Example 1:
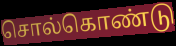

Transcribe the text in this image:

சொல்கொண்டு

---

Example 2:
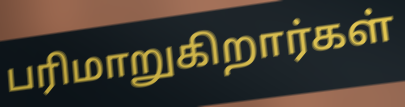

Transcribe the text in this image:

பரிமாறுகிறார்கள்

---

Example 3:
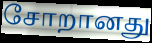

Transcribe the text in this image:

சோறானது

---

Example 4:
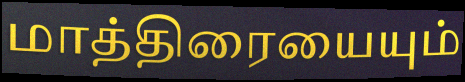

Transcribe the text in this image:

மாத்திரையையும்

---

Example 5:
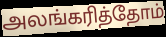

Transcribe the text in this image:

அலங்கரித்தோம்